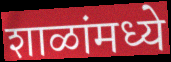
शाळांमध्ये